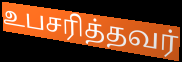
உபசரித்தவர்